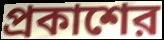
প্রকাশের